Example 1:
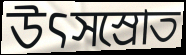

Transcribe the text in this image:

উৎসস্রোত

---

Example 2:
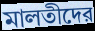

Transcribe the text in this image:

মালতীদের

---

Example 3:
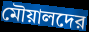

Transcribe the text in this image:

মৌয়ালদের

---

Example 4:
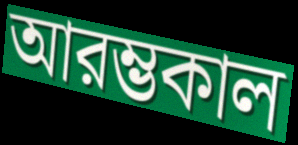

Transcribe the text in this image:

আরম্ভকাল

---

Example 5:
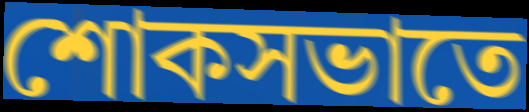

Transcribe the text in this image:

শোকসভাতে